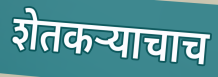
शेतकऱ्याचाच